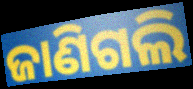
ଜାଣିଗଲି